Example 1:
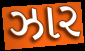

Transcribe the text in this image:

ઝાર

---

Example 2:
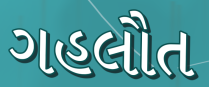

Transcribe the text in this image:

ગહલૌત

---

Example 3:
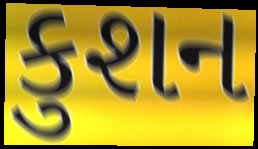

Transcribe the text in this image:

કુશન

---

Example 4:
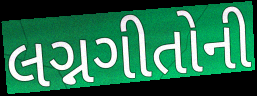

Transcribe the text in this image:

લગ્નગીતોની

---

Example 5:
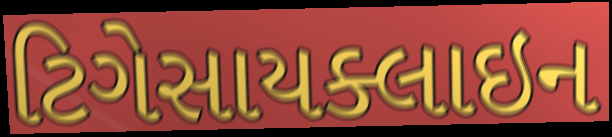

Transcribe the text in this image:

ટિગેસાયક્લાઇન